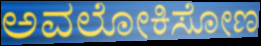
ಅವಲೋಕಿಸೋಣ